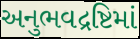
અનુભવદ્રષ્ટિમાં